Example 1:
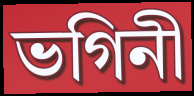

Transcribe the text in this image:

ভগিনী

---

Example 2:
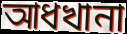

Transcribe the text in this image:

আধখানা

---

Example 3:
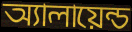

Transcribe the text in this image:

অ্যালায়েন্ড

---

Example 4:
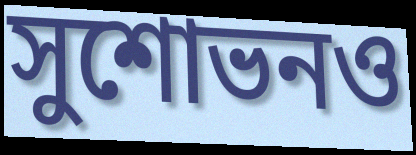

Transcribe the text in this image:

সুশোভনও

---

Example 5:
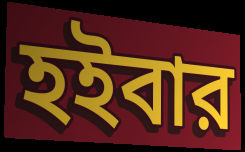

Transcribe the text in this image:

হইবার